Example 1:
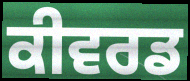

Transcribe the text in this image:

ਕੀਵਰਡ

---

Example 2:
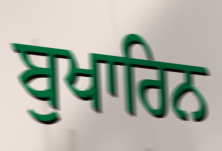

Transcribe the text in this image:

ਬੁਖਾਰਿਨ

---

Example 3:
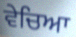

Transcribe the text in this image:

ਵੇਚਿਆ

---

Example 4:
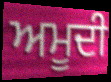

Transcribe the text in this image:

ਅਮੂਦੀ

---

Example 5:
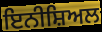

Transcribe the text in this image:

ਇਨੀਸ਼ਿਅਲ